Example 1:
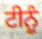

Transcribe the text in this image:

ਟੀਨੂੰ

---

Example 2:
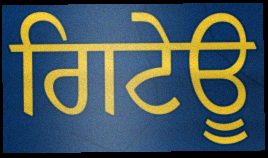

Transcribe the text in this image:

ਗਿਟੇਊ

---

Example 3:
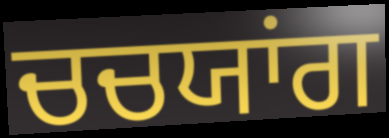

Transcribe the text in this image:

ਚਚਯਾਂਗ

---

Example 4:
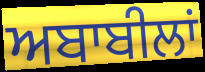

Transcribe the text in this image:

ਅਬਾਬੀਲਾਂ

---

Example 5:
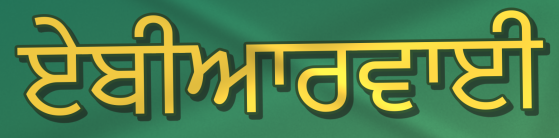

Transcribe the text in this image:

ਏਬੀਆਰਵਾਈ